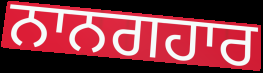
ਨਾਨਗਹਾਰ